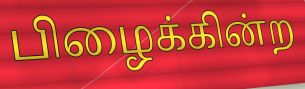
பிழைக்கின்ற